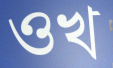
ওখ